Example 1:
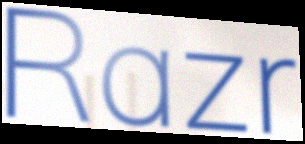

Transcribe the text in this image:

Razr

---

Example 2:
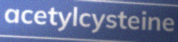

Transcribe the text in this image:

acetylcysteine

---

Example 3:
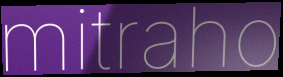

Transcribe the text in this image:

mitraho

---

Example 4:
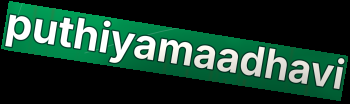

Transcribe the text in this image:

puthiyamaadhavi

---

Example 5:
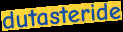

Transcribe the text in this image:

dutasteride